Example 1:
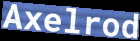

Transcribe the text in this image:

Axelrod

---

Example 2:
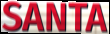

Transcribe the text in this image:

SANTA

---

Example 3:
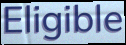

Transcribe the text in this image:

Eligible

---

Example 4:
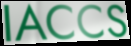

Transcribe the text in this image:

IACCS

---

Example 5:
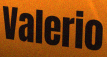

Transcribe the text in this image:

Valerio